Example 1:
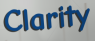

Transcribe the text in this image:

Clarity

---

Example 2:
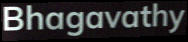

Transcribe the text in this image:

Bhagavathy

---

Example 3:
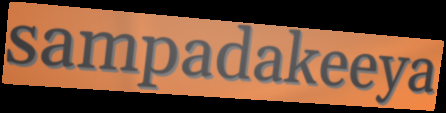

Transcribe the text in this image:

sampadakeeya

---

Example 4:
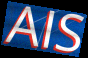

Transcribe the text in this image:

AIS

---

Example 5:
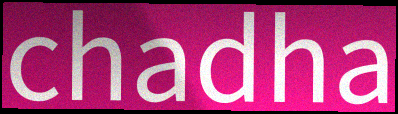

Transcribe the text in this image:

chadha